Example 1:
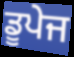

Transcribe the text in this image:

ਡੂਪੇਜ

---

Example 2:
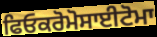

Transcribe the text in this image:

ਫਿਓਕਰੋਮੋਸਾਈਟੋਮਾ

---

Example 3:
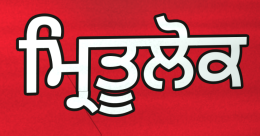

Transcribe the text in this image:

ਮ੍ਰਿਤੂਲੋਕ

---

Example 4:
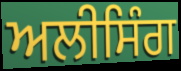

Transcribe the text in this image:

ਅਲੀਸਿੰਗ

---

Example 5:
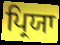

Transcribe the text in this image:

ਪ੍ਰਿਯਾ